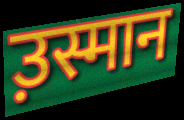
उ़स्मान